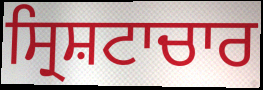
ਸ੍ਰਿਸ਼ਟਾਚਾਰ